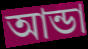
আন্ডা